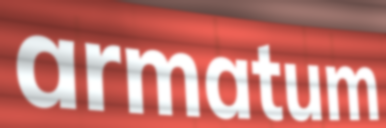
armatum